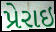
પ્રેરાઇ